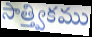
సాత్త్వికము